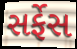
સર્ફેસ